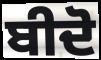
ਬੀਦੋ